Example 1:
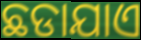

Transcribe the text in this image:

ଛଡାଯାଏ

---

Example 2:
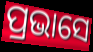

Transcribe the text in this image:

ପ୍ରଭାସେ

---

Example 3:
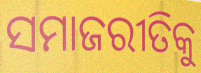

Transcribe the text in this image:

ସମାଜରୀତିକୁ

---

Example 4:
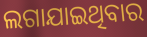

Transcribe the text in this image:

ଲଗାଯାଇଥିବାର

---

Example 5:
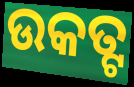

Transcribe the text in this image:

ଉକତ୍ଟ